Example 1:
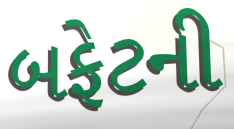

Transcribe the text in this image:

બફેટની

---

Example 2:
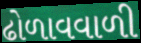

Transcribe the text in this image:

ઢોળાવવાળી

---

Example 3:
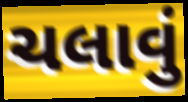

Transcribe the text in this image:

ચલાવું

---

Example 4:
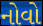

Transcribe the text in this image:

નોવો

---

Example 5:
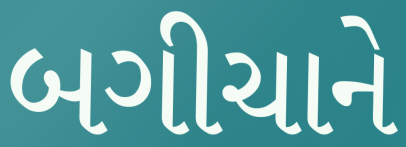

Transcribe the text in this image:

બગીચાને